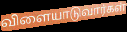
விளையாடுவார்கள்